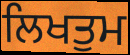
ਲਿਖਤੁਮ